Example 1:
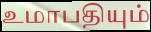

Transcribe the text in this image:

உமாபதியும்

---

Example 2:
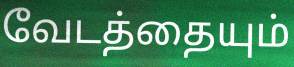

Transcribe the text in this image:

வேடத்தையும்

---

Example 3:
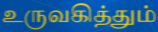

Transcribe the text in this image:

உருவகித்தும்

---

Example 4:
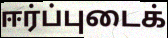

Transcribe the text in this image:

ஈர்ப்புடைக்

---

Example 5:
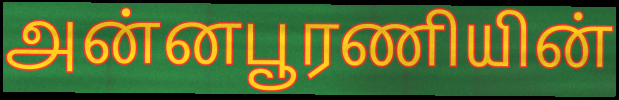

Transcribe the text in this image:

அன்னபூரணியின்